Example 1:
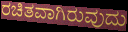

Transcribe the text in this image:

ರಚಿತವಾಗಿರುವುದು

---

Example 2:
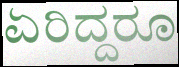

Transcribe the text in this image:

ಏರಿದ್ದರೂ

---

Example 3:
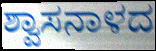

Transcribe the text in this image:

ಶ್ವಾಸನಾಳದ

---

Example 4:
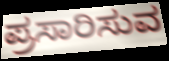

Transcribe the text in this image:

ಪ್ರಸಾರಿಸುವ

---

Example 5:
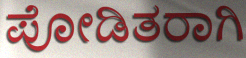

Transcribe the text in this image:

ಪೋಡಿತರಾಗಿ